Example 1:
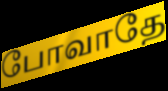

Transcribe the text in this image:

போவாதே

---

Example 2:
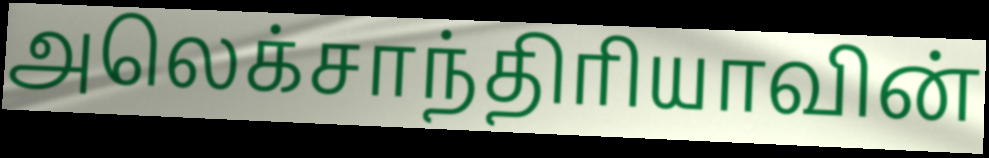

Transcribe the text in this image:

அலெக்சாந்திரியாவின்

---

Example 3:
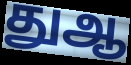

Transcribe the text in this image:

துஆ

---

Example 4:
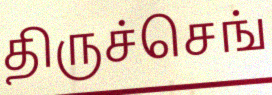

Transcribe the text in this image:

திருச்செங்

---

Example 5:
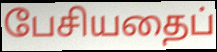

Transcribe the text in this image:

பேசியதைப்